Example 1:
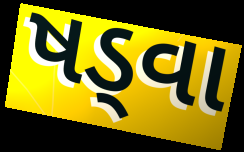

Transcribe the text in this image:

ષડ્વા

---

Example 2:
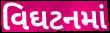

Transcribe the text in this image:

વિઘટનમાં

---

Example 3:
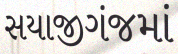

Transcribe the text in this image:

સયાજીગંજમાં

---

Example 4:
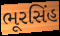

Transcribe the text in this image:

ભૂરસિંહ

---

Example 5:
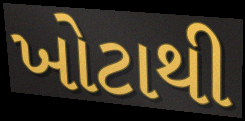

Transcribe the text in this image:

ખોટાથી